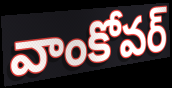
వాంకోవర్